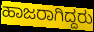
ಹಾಜರಾಗಿದ್ದರು